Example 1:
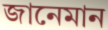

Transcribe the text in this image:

জানেমান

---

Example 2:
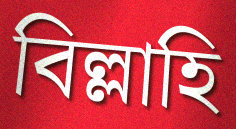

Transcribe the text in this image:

বিল্লাহি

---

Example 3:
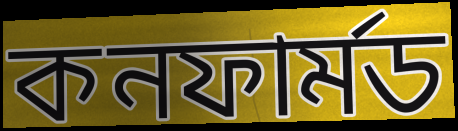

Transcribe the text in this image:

কনফার্মড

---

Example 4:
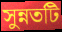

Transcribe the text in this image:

সুন্নতটি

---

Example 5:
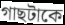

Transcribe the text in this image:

গাছটাকে